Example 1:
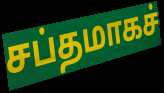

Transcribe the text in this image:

சப்தமாகச்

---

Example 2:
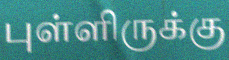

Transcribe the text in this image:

புள்ளிருக்கு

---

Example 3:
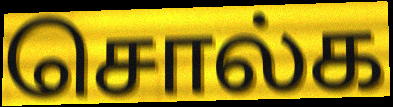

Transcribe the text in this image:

சொல்க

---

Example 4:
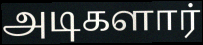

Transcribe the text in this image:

அடிகளார்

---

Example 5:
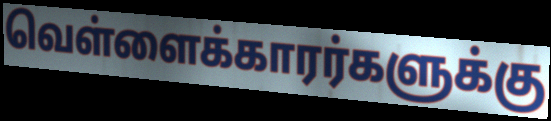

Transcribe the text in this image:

வெள்ளைக்காரர்களுக்கு